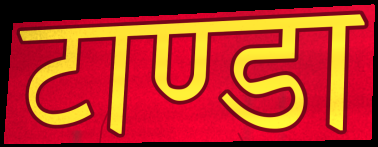
टाण्डा